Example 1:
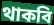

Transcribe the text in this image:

থাকবি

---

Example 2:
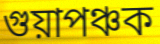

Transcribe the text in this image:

গুয়াপঞ্চক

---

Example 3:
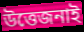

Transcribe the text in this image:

উত্তেজনাই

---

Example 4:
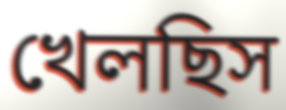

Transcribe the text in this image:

খেলছিস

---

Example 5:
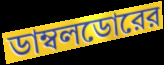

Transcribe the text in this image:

ডাম্বলডোরের